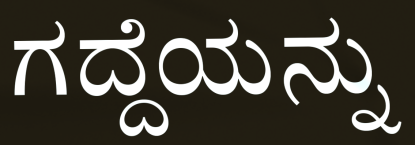
ಗದ್ದೆಯನ್ನು